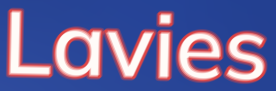
Lavies